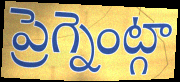
ప్రెగ్నెంట్గా